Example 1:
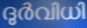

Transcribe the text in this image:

ദുർവിധി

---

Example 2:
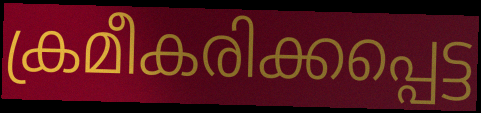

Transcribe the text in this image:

ക്രമീകരിക്കപ്പെട്ട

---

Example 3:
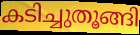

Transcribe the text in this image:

കടിച്ചുതൂങ്ങി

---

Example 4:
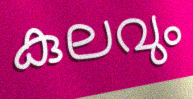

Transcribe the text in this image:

കുലവും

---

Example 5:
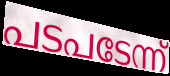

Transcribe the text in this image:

പടപടേന്ന്